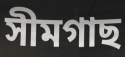
সীমগাছ